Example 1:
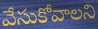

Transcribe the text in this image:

వేసుకోవాలని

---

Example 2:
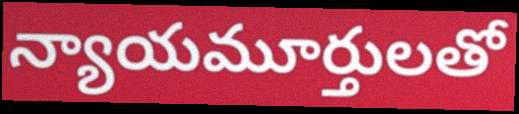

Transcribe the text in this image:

న్యాయమూర్తులతో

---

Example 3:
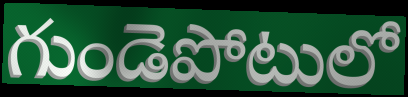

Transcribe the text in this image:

గుండెపోటులో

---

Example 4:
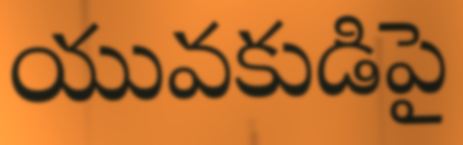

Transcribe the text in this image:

యువకుడిపై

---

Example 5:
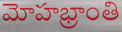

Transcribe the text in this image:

మోహభ్రాంతి